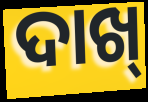
ଦାଖ୍